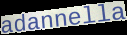
adannella